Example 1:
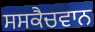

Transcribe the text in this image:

ਸਸਕੈਚਵਾਨ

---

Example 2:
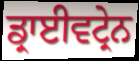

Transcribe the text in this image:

ਡ੍ਰਾਈਵਟ੍ਰੇਨ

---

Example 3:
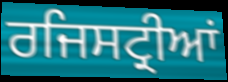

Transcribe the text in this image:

ਰਜਿਸਟ੍ਰੀਆਂ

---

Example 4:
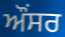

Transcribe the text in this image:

ਔਂਸਰ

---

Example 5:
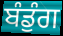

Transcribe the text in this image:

ਬੰਡੁੰਗ